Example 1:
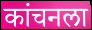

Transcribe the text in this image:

कांचनला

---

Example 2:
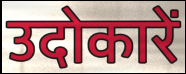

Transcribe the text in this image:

उदोकारें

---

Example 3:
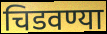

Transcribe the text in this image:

चिडवण्या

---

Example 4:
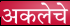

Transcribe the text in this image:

अकलेचे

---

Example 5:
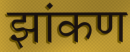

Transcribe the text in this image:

झांकण